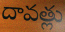
దావత్లు